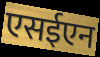
एसईएन